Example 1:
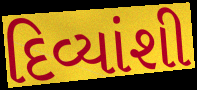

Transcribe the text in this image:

દિવ્યાંશી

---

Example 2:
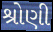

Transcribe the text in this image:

શ્રોણી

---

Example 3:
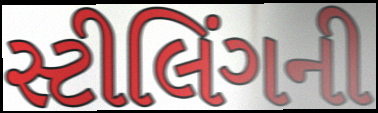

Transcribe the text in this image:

સ્ટીલિંગની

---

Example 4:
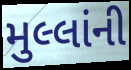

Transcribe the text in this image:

મુલ્લાંની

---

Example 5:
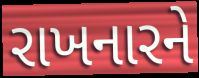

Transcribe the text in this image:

રાખનારને